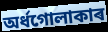
অৰ্ধগোলাকাৰ